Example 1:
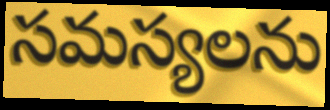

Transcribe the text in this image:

సమస్యలను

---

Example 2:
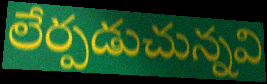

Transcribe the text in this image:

లేర్పడుచున్నవి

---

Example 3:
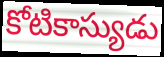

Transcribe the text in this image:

కోటికాస్యుడు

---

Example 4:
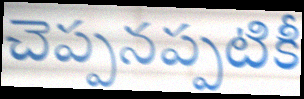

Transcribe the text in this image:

చెప్పనప్పటికీ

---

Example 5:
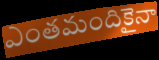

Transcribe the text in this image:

ఎంతమందికైనా